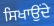
ਸਿਖਾਉਂਦੇ